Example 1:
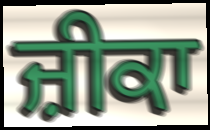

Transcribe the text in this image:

ਜ਼ੀਕਾ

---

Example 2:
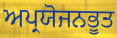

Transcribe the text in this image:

ਅਪ੍ਰਯੋਜਨਭੂਤ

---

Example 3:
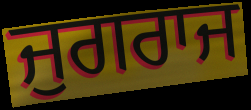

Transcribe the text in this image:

ਜੁਗਰਾਜ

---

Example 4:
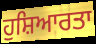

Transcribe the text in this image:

ਹੁਸ਼ਿਆਰਤਾ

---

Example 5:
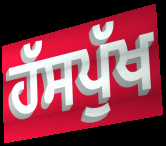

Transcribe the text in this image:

ਹੱਸਪੁੱਖ